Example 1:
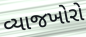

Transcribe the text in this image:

વ્યાજખોરો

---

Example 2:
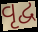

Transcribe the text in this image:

વૃદ્વ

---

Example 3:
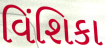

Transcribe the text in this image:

વિંશિકા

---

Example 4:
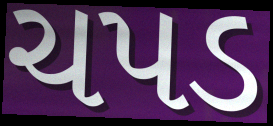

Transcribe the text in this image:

ચપડ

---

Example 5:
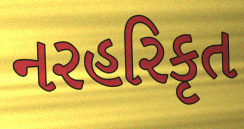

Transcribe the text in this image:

નરહરિકૃત